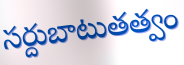
సర్దుబాటుతత్వం